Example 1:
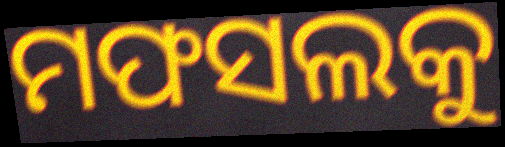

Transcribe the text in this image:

ମଫସଲକୁ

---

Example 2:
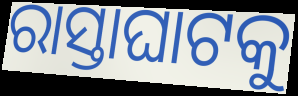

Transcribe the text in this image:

ରାସ୍ତାଘାଟକୁ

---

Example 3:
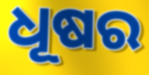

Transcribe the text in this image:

ଧୂଷର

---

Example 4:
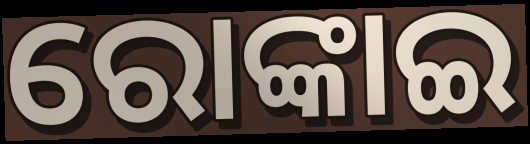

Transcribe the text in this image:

ରୋଙ୍କାଇ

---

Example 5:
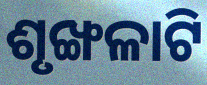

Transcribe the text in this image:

ଶୃଙ୍ଖଳାଟି